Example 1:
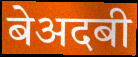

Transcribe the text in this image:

बेअदबी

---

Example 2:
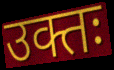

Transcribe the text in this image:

उक्तः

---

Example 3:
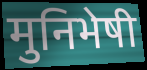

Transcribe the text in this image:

मुनिभेषी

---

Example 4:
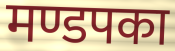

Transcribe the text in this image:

मण्डपका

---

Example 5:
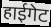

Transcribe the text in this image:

हाईगेट